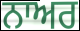
ਨਾਅਰ